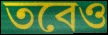
তবেও